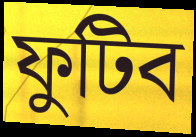
ফুটিব